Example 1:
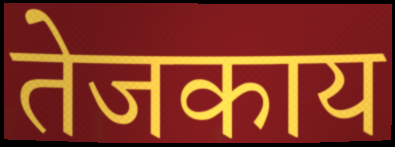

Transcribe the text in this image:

तेजकाय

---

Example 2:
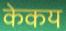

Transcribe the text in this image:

केकय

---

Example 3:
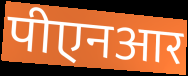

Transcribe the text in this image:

पीएनआर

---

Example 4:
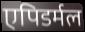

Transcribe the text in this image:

एपिडर्मल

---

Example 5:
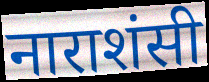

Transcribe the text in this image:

नाराशंसी